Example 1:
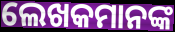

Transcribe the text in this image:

ଲେଖକମାନଙ୍କ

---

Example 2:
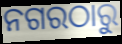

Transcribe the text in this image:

ନଗରଠାରୁ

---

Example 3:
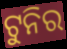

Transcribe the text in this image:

ଟୁନିର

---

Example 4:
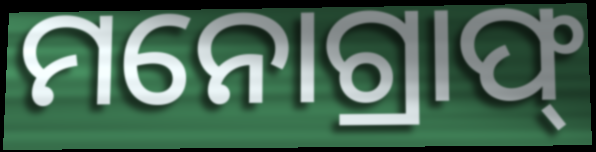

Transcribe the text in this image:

ମନୋଗ୍ରାଫ୍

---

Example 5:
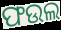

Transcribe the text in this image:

ଫଉଲ